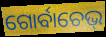
ଗୋର୍ବାଚେଭ୍